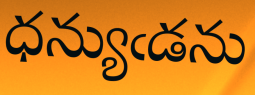
ధన్యుఁడను